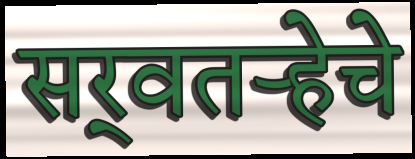
सर्वतऱ्हेचे